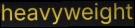
heavyweight